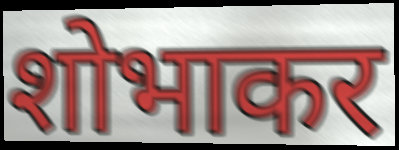
शोभाकर